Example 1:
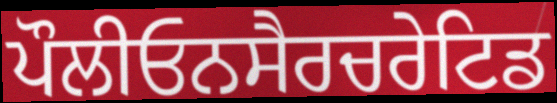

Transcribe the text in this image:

ਪੌਲੀਓਨਸੈਰਚਰੇਟਿਡ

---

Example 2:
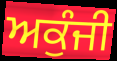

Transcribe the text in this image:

ਅਕੁੰਜੀ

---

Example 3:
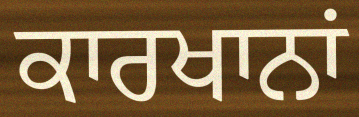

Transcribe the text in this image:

ਕਾਰਖਾਨਾਂ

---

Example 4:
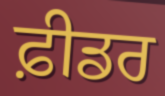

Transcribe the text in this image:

ਫ਼ੀਡਰ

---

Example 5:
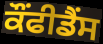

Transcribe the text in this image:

ਕੌਂਫੀਡੈਂਸ